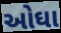
ઓઘા